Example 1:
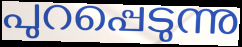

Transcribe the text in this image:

പുറപ്പെടുന്നു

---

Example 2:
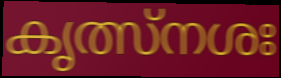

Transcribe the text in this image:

കൃത്സ്നശഃ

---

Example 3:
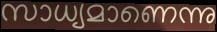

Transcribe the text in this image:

സാധ്യമാണെന്നു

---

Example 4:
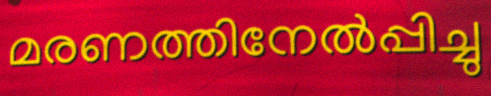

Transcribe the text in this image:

മരണത്തിനേൽപ്പിച്ചു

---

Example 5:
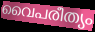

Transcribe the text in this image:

വൈപരീത്യം